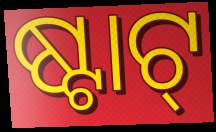
ଷ୍ଟାଟ୍